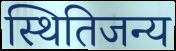
स्थितिजन्य